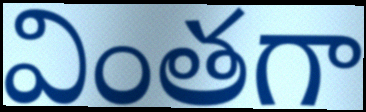
వింతగా